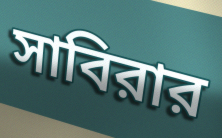
সাবিরার